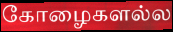
கோழைகளல்ல